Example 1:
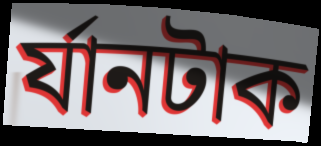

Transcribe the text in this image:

র্যানটাক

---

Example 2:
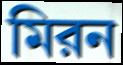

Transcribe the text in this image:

মিরন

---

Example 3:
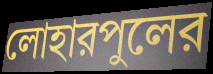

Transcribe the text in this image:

লোহারপুলের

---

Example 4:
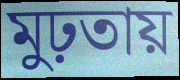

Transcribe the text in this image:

মুঢ়তায়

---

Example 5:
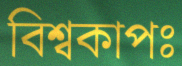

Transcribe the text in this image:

বিশ্বকাপঃ